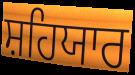
ਸ਼ਹਿਯਾਰ